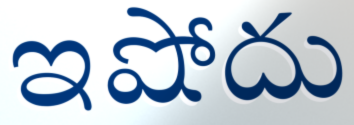
ఇషోదు